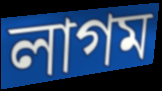
লাগম